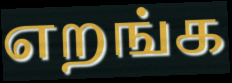
எறங்க